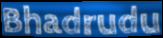
Bhadrudu